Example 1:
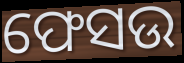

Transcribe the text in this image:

ଫେସଉ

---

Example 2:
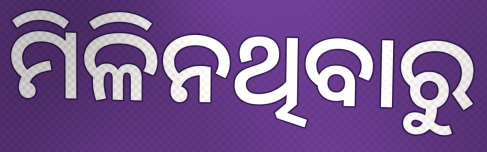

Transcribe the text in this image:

ମିଳିନଥିବାରୁ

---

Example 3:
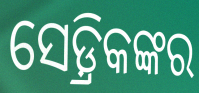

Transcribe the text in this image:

ସେଡ଼୍ରିକଙ୍କର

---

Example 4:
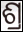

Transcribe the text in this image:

ଶ୍ର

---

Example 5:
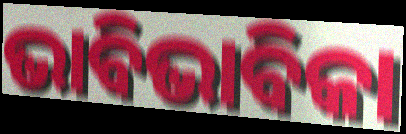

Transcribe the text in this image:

ଭାବିଭାବିକା